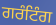
ਗਰੰਟਿੰਗ